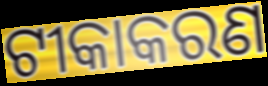
ଟୀକାକରଣ